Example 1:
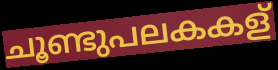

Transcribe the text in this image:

ചൂണ്ടുപലകകള്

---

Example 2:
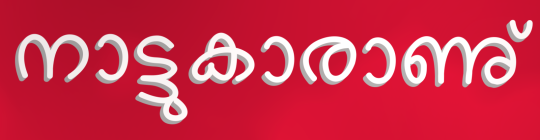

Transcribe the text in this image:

നാട്ടുകാരാണു്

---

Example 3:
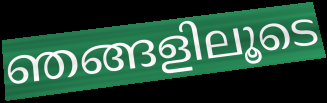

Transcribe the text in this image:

ഞങ്ങളിലൂടെ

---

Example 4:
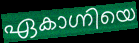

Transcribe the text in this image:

ഏകാഗ്നിയെ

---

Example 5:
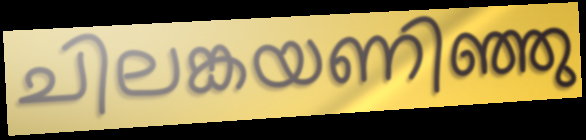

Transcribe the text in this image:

ചിലങ്കയണിഞ്ഞു